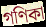
গণিকা